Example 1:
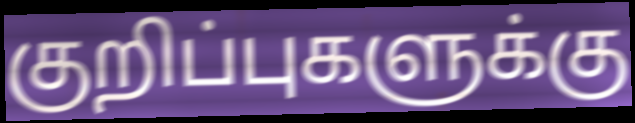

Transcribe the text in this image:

குறிப்புகளுக்கு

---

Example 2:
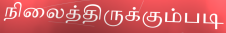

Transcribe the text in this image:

நிலைத்திருக்கும்படி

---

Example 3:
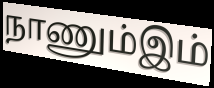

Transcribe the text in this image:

நாணும்இம்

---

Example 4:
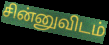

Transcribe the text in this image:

சின்னுவிடம்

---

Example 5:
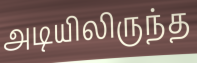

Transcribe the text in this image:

அடியிலிருந்த